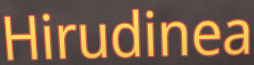
Hirudinea